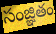
సంజ్ఞితం